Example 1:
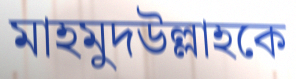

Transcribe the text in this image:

মাহমুদউল্লাহকে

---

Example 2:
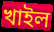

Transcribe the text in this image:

খাইল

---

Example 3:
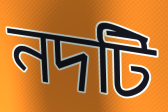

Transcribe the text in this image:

নদটি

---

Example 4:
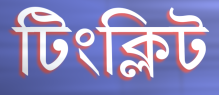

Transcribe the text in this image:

টিংক্লিট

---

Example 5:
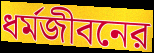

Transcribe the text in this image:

ধর্মজীবনের